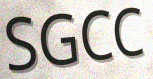
SGCC